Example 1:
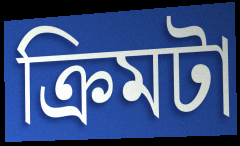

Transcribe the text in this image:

ক্রিমটা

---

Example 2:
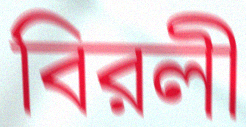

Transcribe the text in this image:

বিরলী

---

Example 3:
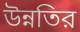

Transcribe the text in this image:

উন্নতির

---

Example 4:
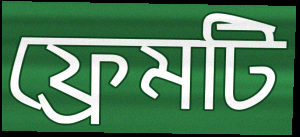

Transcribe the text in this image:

ফ্রেমটি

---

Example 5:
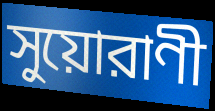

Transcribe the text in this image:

সুয়োরাণী